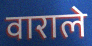
वाराले